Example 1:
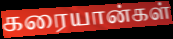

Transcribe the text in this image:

கரையான்கள்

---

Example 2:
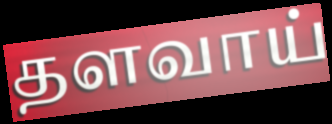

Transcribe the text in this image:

தளவாய்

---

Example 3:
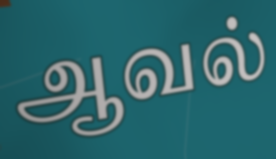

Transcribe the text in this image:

ஆவல்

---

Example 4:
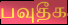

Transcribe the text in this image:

பவுதீக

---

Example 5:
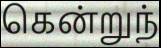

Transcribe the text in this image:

கென்றுந்